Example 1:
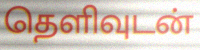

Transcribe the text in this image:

தெளிவுடன்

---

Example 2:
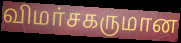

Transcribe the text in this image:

விமர்சகருமான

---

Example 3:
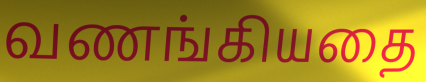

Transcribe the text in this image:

வணங்கியதை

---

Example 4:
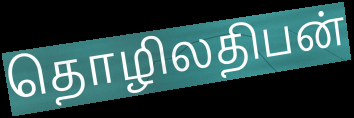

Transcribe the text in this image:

தொழிலதிபன்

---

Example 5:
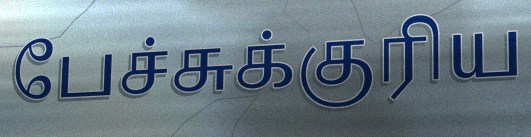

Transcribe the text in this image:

பேச்சுக்குரிய